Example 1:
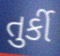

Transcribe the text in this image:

તુર્કી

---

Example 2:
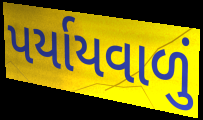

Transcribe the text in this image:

પર્યાયવાળું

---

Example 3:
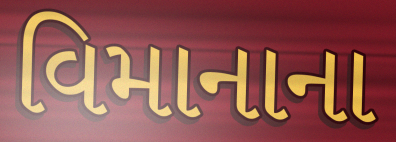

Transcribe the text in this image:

વિમાનાના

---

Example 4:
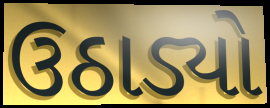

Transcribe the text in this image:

ઉઠાડ્યો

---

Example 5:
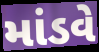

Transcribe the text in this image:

માંડવે